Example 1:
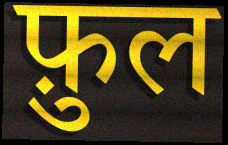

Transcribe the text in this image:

फ़ुल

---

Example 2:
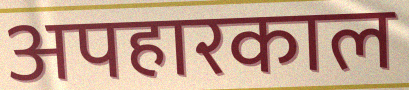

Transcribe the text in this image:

अपहारकाल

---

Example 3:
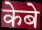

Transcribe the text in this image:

केबे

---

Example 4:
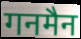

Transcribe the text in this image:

गनमैन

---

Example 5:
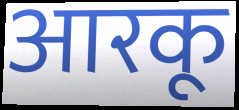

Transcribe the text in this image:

आरकू